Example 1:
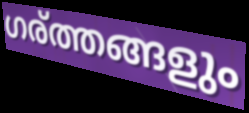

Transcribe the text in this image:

ഗര്ത്തങ്ങളും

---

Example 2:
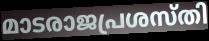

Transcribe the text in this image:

മാടരാജപ്രശസ്തി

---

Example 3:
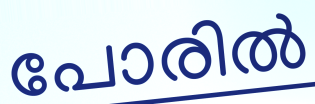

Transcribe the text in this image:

പോരിൽ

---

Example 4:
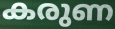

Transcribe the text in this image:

കരുണ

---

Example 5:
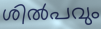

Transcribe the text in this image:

ശിൽപവും